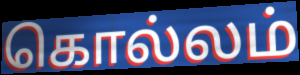
கொல்லம்